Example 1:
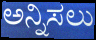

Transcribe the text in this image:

ಅನ್ನಿಸಲು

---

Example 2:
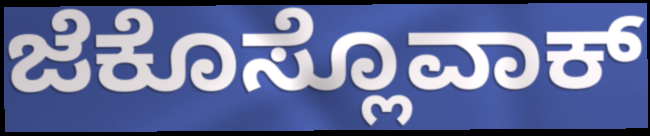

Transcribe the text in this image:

ಜೆಕೊಸ್ಲೊವಾಕ್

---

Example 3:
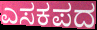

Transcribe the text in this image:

ಎಸಕಪದ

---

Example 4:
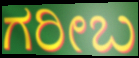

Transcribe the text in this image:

ಗರೀಬ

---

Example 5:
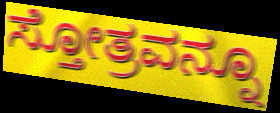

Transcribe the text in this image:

ಸ್ತೋತ್ರವನ್ನೂ